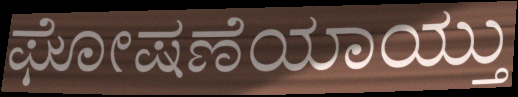
ಘೋಷಣೆಯಾಯ್ತು